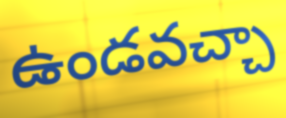
ఉండవచ్చా